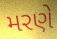
મરણે